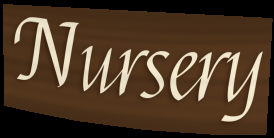
Nursery